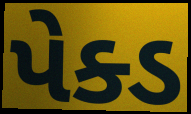
પેક્ડ